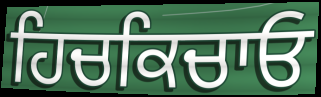
ਹਿਚਕਿਚਾਓ